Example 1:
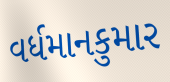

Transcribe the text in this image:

વર્ધમાનકુમાર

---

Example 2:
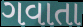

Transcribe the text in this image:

ગવાતા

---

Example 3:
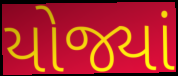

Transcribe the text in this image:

યોજ્યાં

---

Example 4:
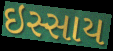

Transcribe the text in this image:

ઇસ્સાય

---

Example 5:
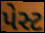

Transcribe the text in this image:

પેસ્ટ